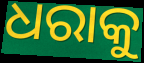
ଧରାକୁ